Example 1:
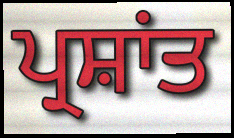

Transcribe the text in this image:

ਪ੍ਰਸ਼ਾਂਤ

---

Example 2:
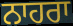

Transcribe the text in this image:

ਨਾਹਰਾ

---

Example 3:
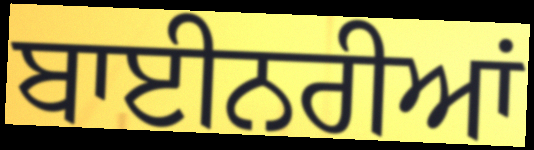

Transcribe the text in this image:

ਬਾਈਨਰੀਆਂ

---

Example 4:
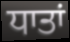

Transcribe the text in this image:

ਧਾਤਾਂ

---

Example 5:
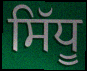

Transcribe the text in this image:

ਸਿੱਧੂ